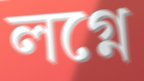
লগ্নে